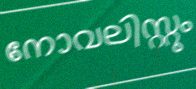
നോവലിസ്റ്റും